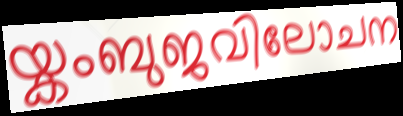
യ്കംബുജവിലോചന